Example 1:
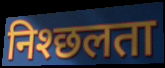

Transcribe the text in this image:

निश्छलता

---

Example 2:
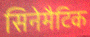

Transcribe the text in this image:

सिनेमैटिक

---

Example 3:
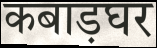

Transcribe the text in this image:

कबाड़घर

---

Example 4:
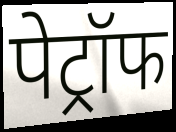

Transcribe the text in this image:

पेट्रॉफ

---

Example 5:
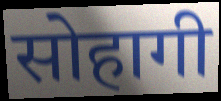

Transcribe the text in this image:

सोहागी